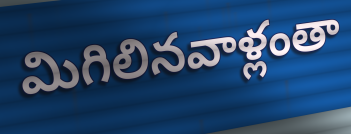
మిగిలినవాళ్లంతా